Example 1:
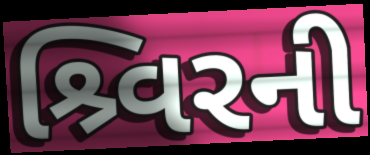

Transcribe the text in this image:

શ્ર્વિરની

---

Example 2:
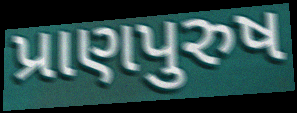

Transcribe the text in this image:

પ્રાણપુરુષ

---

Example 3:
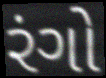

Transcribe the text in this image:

રંગો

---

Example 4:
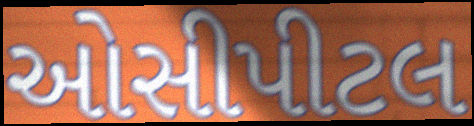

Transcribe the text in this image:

ઓસીપીટલ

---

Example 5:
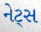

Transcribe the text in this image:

નેટ્સ